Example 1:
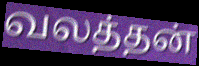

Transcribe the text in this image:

வலத்தன்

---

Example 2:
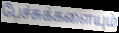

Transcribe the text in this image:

பேச்சுக்களையும்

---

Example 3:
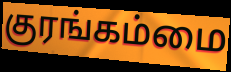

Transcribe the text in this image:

குரங்கம்மை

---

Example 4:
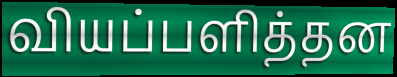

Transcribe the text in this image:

வியப்பளித்தன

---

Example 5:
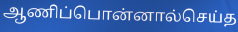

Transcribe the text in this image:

ஆணிப்பொன்னால்செய்த